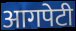
आगपेटी